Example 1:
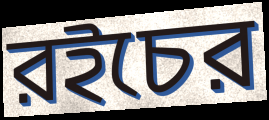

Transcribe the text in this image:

রইচের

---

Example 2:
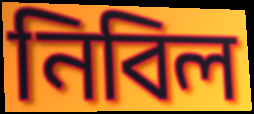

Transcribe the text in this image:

নিবিল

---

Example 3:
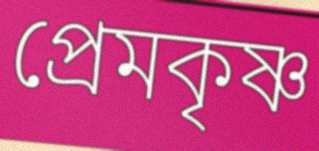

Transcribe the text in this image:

প্রেমকৃষ্ণ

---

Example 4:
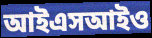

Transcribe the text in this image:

আইএসআইও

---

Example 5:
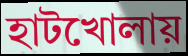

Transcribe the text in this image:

হাটখোলায়